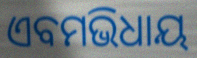
ଏବମଭିଧାୟ